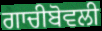
ਗਾਚੀਬੋਵਲੀ